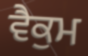
ਵੈਕੁਮ